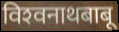
विश्‍वनाथबाबू